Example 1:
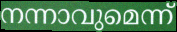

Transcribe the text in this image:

നന്നാവുമെന്ന്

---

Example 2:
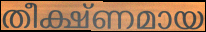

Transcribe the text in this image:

തീക്ഷ്‌ണമായ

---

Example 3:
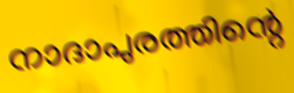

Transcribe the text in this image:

നാദാപുരത്തിന്റെ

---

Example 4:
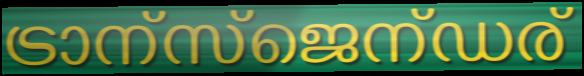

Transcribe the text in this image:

ട്രാന്സ്ജെന്ഡര്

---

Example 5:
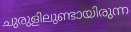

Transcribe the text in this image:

ചുരുളിലുണ്ടായിരുന്ന